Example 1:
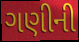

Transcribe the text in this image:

ગણીની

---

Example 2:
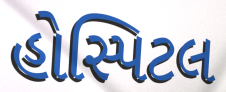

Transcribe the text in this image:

હોસ્પિટલ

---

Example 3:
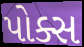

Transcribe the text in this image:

પોક્સ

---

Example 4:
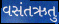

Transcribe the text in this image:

વસંતઋતુ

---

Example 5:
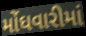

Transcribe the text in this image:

મોંઘવારીમાં